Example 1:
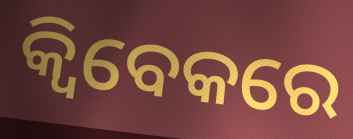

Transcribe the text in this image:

କ୍ୱିବେକରେ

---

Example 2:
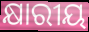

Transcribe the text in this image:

କ୍ଷାରୀୟ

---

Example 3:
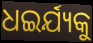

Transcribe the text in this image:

ଧଇର୍ଯ୍ୟକୁ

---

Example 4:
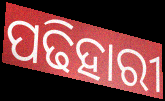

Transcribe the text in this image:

ପଢିହାରୀ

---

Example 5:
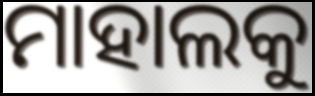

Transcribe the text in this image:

ମାହାଲକୁ